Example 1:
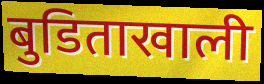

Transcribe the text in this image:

बुडिताखाली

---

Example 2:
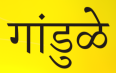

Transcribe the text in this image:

गांडुळे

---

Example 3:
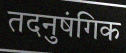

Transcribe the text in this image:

तदनुषंगिक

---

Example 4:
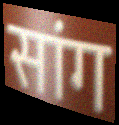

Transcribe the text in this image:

सांग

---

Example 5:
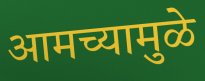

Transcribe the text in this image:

आमच्यामुळे